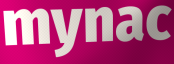
mynac